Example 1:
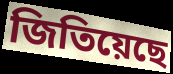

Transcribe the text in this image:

জিতিয়েছে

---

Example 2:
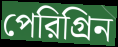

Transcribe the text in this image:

পেরিগ্রিন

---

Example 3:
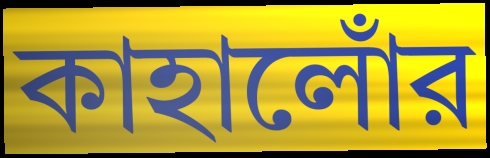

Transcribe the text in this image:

কাহালোঁর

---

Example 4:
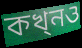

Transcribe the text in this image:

কখ্নও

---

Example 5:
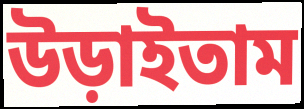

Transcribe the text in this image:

উড়াইতাম